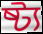
ষ্ট্য